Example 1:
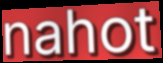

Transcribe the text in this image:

nahot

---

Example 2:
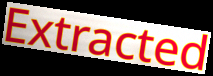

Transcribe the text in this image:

Extracted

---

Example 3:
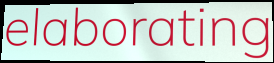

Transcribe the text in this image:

elaborating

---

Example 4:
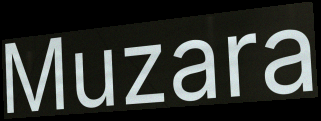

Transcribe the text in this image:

Muzara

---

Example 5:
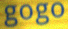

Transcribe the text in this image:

gogo